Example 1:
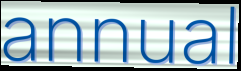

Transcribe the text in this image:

annual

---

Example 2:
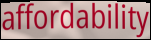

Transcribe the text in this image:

affordability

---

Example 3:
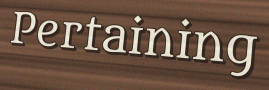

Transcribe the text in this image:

Pertaining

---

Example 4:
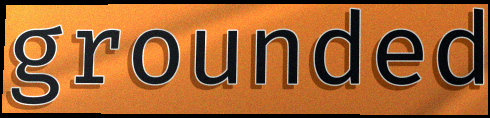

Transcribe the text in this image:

grounded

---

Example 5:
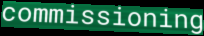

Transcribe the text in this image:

commissioning